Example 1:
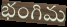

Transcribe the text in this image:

భంగిమ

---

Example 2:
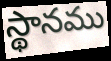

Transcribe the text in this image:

స్థానము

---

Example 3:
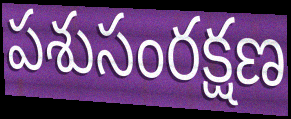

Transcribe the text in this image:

పశుసంరక్షణ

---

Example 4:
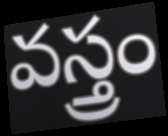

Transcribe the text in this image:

వస్త్రం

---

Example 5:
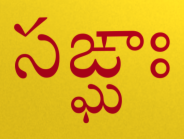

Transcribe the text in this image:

సఙ్ఘాః